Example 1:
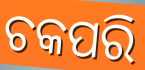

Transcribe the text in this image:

ଚକପରି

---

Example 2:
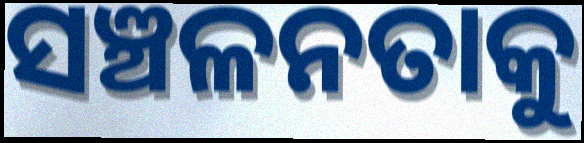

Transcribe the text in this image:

ସଞ୍ଚଳନତାକୁ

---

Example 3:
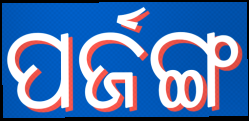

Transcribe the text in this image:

ପର୍ଜଙ୍ଗ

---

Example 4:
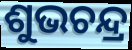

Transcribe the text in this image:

ଶୁଭଚନ୍ଦ୍ର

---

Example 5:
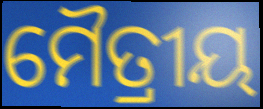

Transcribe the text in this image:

ମୈତ୍ରୀୟ